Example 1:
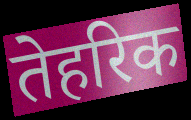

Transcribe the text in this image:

तेहरिक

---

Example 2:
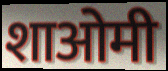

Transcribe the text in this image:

शाओमी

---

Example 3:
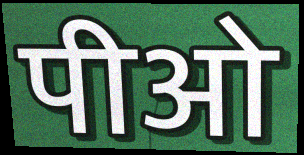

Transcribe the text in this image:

पीओ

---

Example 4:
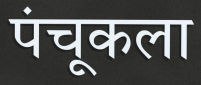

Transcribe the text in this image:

पंचूकला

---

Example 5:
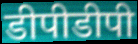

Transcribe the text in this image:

डीपीडीपी